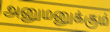
அனுமனுக்கும்